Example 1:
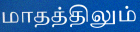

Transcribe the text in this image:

மாதத்திலும்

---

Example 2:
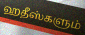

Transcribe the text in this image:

ஹதீஸ்களும்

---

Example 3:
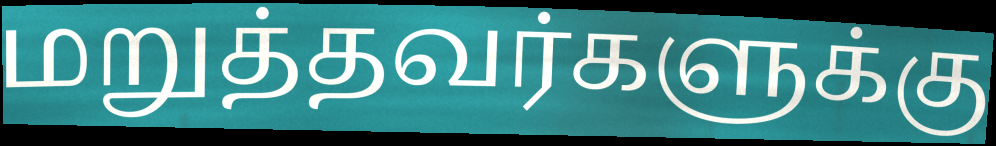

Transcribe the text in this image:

மறுத்தவர்களுக்கு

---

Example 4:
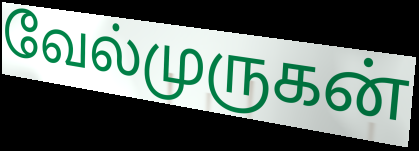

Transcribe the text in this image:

வேல்முருகன்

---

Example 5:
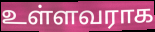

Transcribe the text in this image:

உள்ளவராக